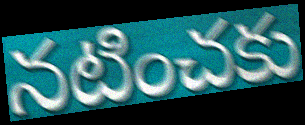
నటించకు